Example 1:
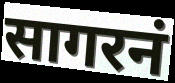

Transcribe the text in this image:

सागरनं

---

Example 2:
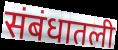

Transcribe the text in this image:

संबंधातली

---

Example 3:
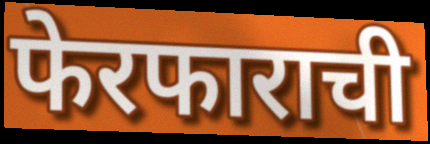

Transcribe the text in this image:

फेरफाराची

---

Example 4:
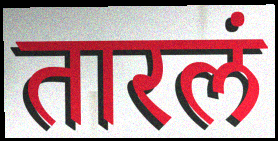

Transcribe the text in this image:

तारलं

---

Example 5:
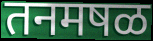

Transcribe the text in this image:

तनमषळ